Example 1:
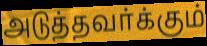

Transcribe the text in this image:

அடுத்தவர்க்கும்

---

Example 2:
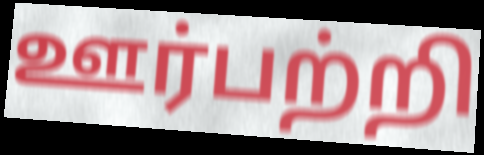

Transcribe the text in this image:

ஊர்பற்றி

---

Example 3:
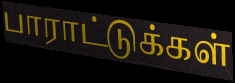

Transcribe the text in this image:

பாராட்டுக்கள்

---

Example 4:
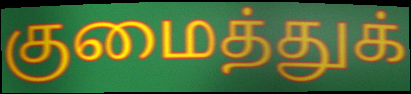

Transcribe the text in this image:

குமைத்துக்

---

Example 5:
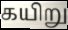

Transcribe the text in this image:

கயிறு